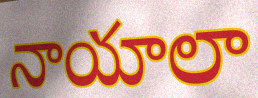
నాయాలా